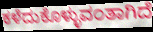
ಕಳೆದುಕೊಳ್ಳುವಂತಾಗಿದೆ